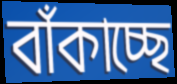
বাঁকাচ্ছে